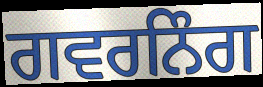
ਗਵਰਨਿੰਗ